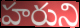
హరుని